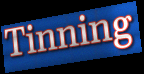
Tinning